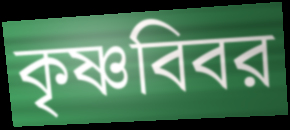
কৃষ্ণবিবর